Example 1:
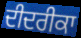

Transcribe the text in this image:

ਦੀਦਰੀਕਾ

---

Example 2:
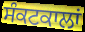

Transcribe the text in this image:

ਸੰਕਟਕਾਲਾਂ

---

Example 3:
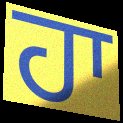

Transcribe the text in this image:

ਹਾ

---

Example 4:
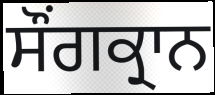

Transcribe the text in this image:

ਸੌਂਗਕ੍ਰਾਨ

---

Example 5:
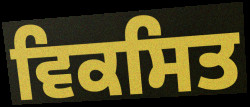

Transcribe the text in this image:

ਵਿਕਸਿਤ